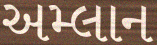
અમ્લાન